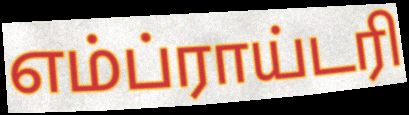
எம்ப்ராய்டரி